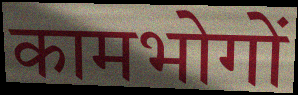
कामभोगों